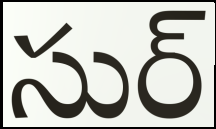
సుర్